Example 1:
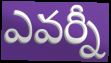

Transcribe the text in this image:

ఎవర్నీ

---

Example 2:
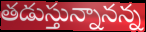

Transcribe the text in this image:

తడుస్తున్నానన్న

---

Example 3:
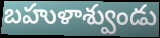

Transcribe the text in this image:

బహుళాశ్వుండు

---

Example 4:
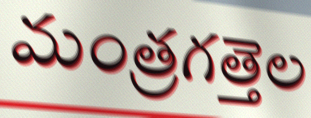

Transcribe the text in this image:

మంత్రగత్తెల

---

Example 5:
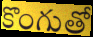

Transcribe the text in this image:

కొంగుతో